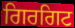
ਗਿਰਗਿਟ